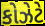
કોઝેટે